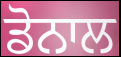
ਡੋਨਾਲ